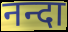
नन्दा